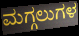
ಮಗ್ಗಲುಗಳ